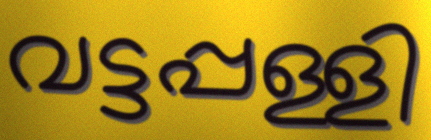
വട്ടപ്പള്ളി